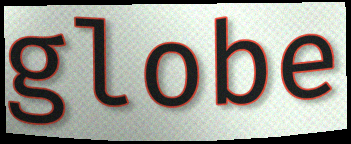
globe